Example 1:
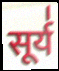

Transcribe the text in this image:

सूर्य॑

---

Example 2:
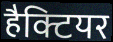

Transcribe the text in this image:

हैक्टियर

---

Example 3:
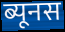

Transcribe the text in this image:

ब्यूनस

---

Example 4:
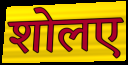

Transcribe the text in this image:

शोलए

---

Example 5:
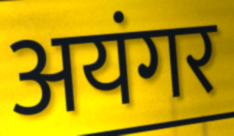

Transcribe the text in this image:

अयंगर